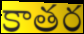
కాతర